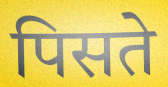
पिसते